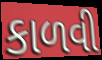
કાળવી